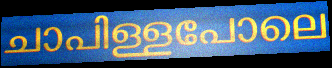
ചാപിള്ളപോലെ